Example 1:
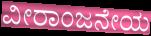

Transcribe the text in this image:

ವೀರಾಂಜನೇಯ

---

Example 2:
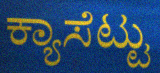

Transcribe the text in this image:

ಕ್ಯಾಸೆಟ್ಟು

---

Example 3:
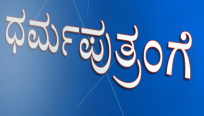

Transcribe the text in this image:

ಧರ್ಮಪುತ್ರಂಗೆ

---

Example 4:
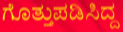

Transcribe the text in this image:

ಗೊತ್ತುಪಡಿಸಿದ್ದ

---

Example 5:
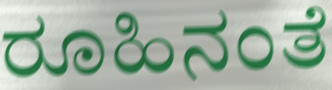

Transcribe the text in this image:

ರೂಹಿನಂತೆ